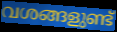
വശങ്ങളുണ്ട്